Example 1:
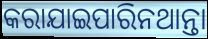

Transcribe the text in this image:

କରାଯାଇପାରିନଥାନ୍ତା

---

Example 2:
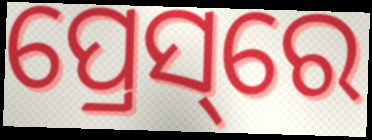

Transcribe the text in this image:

ପ୍ରେସ୍‌ରେ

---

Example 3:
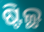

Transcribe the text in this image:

ଷ୍ଟିଲ୍ଥ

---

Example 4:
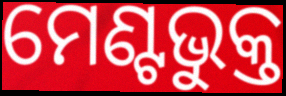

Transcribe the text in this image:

ମେଣ୍ଟଭୁକ୍ତ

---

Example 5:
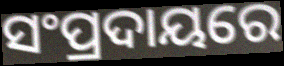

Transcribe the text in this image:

ସଂପ୍ରଦାୟରେ